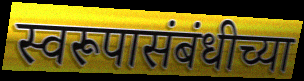
स्वरूपासंबंधीच्या